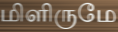
மிளிருமே